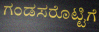
ಗಂಡಸರೊಟ್ಟಿಗೆ